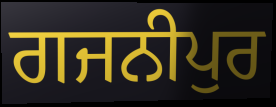
ਗਜਨੀਪੁਰ